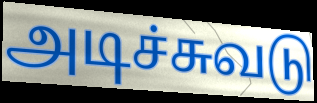
அடிச்சுவடு